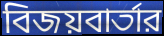
বিজয়বার্তার